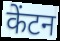
केंटन